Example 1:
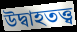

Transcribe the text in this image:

উদ্বাহতত্ত্ব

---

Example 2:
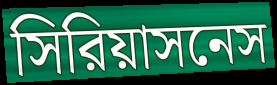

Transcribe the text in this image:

সিরিয়াসনেস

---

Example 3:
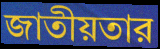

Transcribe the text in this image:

জাতীয়তার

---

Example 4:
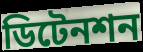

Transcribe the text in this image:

ডিটেনশন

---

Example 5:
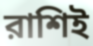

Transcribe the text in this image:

রাশিই